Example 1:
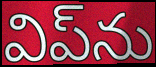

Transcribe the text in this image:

విప్‌ను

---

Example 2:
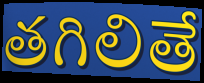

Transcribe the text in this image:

తగిలితే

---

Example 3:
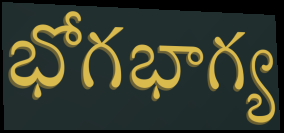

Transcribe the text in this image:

భోగభాగ్య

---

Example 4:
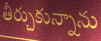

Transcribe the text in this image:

తీర్చుకున్నాను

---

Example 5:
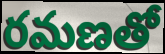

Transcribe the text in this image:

రమణతో